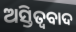
ଅସ୍ତିତ୍ବବାଦ